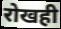
रोखही